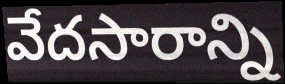
వేదసారాన్ని